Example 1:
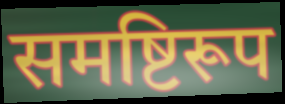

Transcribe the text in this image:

समष्टिरूप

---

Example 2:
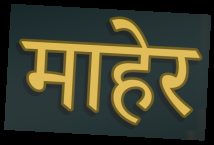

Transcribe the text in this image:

माहेर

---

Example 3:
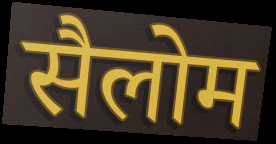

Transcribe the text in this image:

सैलोम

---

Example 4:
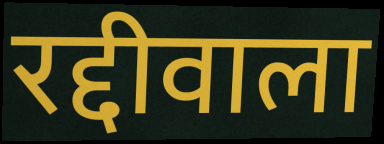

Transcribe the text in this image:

रद्दीवाला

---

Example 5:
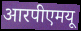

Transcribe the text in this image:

आरपीएमयू